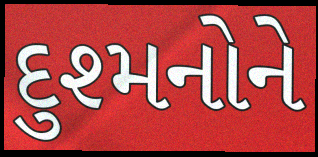
દુશ્મનોને